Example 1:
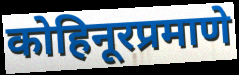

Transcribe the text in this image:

कोहिनूरप्रमाणे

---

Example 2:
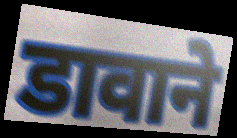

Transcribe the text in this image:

डावाने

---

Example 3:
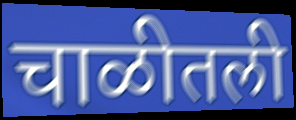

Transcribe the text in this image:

चाळीतली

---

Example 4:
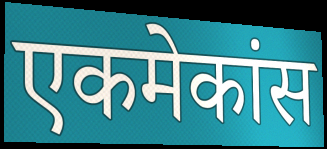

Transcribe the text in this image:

एकमेकांस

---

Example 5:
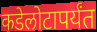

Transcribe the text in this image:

कडेलोटापर्यंत